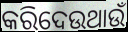
କରିଦେଉଥାଉଁ